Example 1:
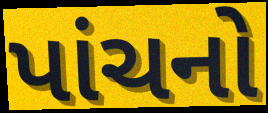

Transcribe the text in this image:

પાંચનો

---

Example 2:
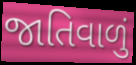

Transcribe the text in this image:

જાતિવાળું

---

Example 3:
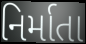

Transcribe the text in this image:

નિર્માતા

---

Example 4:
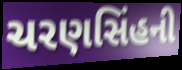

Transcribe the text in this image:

ચરણસિંહની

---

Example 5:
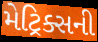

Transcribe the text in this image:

મેટ્રિક્સની